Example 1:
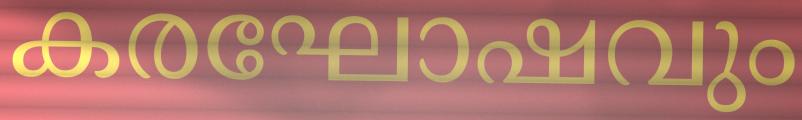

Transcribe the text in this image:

കരഘോഷവും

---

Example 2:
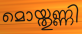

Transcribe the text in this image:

മൊയ്തുണ്ണി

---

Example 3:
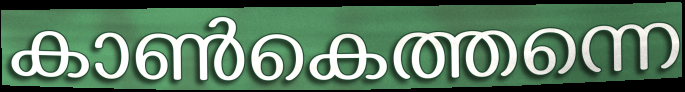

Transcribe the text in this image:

കാൺകെത്തന്നെ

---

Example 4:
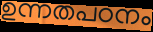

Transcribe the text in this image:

ഉന്നതപഠനം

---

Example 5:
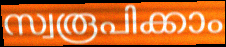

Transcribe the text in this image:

സ്വരൂപിക്കാം